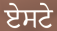
ਏਸਟੇ